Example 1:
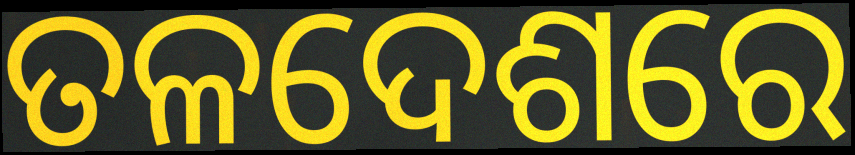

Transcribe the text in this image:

ତଳଦେଶରେ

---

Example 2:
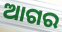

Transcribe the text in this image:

ଆଗର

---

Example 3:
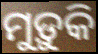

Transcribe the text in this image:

ମୁଡ଼ୁକି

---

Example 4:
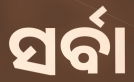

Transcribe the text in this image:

ସର୍ବା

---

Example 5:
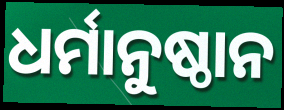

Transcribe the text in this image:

ଧର୍ମାନୁଷ୍ଠାନ